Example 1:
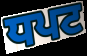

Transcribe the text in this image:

ਧਪਟ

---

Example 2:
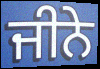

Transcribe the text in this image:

ਜੀਨੇ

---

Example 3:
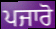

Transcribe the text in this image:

ਪਜਾਰੋ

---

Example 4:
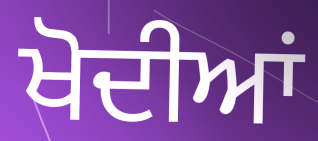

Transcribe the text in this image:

ਖੋਦੀਆਂ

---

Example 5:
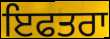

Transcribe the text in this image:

ਇਫਤਰਾ